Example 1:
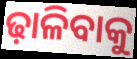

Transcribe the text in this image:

ଢ଼ାଳିବାକୁ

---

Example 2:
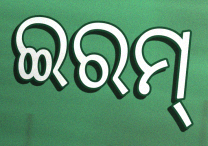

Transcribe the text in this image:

ଇରମ୍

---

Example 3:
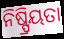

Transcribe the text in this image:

ନିଷ୍ପ୍ରିୟତା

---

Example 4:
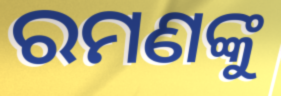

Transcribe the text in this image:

ରମଣଙ୍କୁ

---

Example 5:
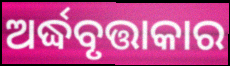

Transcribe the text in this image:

ଅର୍ଦ୍ଧବୃତ୍ତାକାର